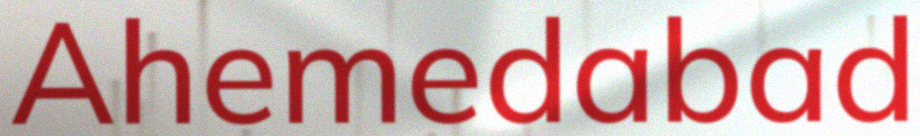
Ahemedabad